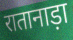
रातानाड़ा